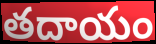
తదాయం